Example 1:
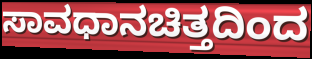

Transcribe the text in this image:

ಸಾವಧಾನಚಿತ್ತದಿಂದ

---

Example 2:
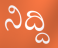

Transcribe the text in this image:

ನಿದ್ದಿ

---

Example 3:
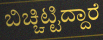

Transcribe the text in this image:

ಬಿಚ್ಚಿಟ್ಟಿದ್ದಾರೆ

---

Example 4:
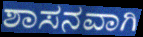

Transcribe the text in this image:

ಶಾಸನವಾಗಿ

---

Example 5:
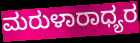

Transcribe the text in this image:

ಮರುಳಾರಾಧ್ಯರ